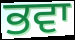
ਭਵਾ